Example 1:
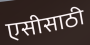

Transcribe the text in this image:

एसीसाठी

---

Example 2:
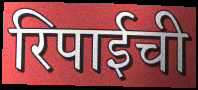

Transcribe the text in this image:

रिपाईची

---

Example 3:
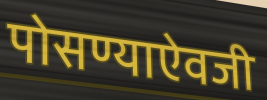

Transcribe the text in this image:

पोसण्याऐवजी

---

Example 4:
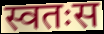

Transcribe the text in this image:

स्वतःस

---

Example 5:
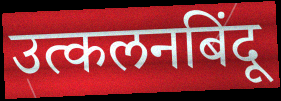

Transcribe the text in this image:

उत्कलनबिंदू